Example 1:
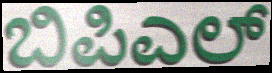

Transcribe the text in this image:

ಬಿಪಿಎಲ್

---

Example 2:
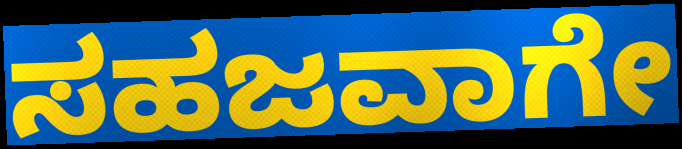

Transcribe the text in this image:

ಸಹಜವಾಗೇ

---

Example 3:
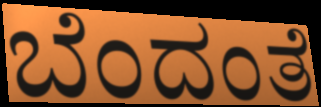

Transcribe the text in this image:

ಬೆಂದಂತೆ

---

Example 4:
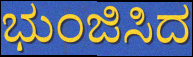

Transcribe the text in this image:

ಭುಂಜಿಸಿದ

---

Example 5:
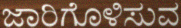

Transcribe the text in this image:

ಜಾರಿಗೊಳಿಸುವ